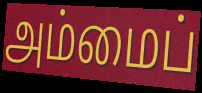
அம்மைப்